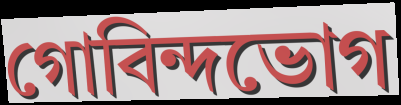
গোবিন্দভোগ